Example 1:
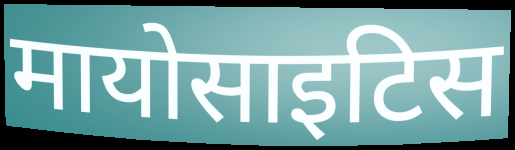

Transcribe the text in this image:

मायोसाइटिस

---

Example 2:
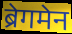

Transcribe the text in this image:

ब्रेगमेन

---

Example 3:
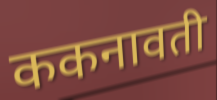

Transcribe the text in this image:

ककनावती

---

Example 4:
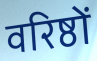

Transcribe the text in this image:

वरिष्ठों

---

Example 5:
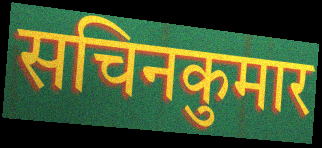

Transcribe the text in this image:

सचिनकुमार